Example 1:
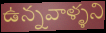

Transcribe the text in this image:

ఉన్నవాళ్ళని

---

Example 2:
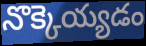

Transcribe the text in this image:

నొక్కెయ్యడం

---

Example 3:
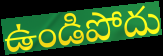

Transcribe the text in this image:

ఉండిపోదు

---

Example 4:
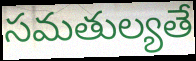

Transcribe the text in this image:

సమతుల్యతే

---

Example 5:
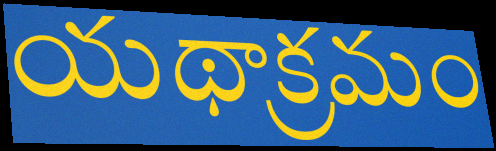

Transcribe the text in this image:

యథాక్రమం